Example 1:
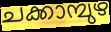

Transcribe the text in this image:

ചക്കാമ്പുഴ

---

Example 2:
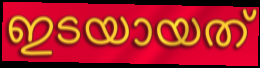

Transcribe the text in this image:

ഇടയായത്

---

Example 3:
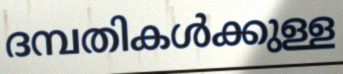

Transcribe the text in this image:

ദമ്പതികൾക്കുള്ള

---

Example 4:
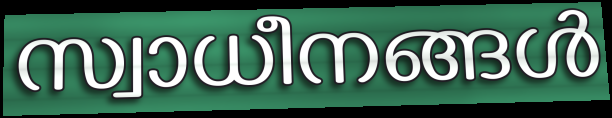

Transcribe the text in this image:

സ്വാധീനങ്ങൾ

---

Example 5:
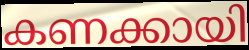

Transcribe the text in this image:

കണക്കായി